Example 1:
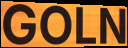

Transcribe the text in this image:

GOLN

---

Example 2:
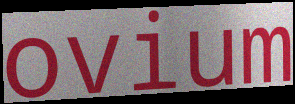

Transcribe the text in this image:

ovium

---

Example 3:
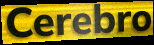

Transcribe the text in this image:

Cerebro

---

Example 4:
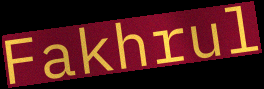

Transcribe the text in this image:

Fakhrul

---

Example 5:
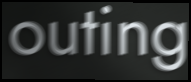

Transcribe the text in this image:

outing